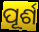
ପୂର୍ଶ